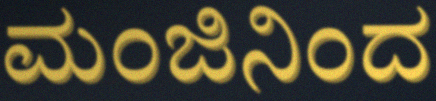
ಮಂಜಿನಿಂದ